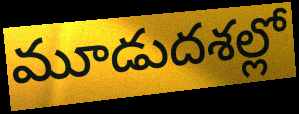
మూడుదశల్లో